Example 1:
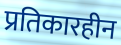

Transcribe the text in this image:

प्रतिकारहीन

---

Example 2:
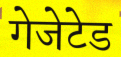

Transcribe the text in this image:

गेजेटेड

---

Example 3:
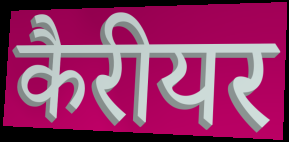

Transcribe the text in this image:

कैरीयर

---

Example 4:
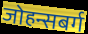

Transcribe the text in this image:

जोहन्सबर्ग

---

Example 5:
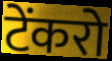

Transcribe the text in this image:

टेंकरो